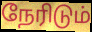
நேரிடும்